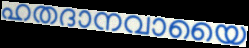
ഹതദാനവായൈ